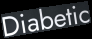
Diabetic